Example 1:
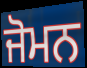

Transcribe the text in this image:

ਜੋਮਨ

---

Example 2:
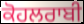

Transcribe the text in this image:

ਕੋਹਲਰਾਬੀ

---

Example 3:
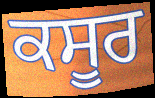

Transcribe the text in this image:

ਕਸੂਰ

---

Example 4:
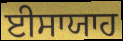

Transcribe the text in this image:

ਈਸਾਯਾਹ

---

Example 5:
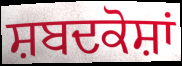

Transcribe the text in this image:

ਸ਼ਬਦਕੋਸ਼ਾਂ